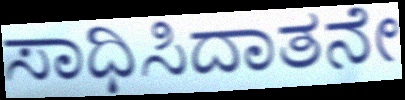
ಸಾಧಿಸಿದಾತನೇ